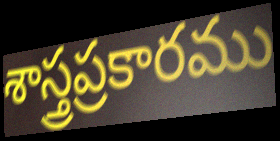
శాస్త్రప్రకారము